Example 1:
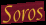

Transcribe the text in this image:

Soros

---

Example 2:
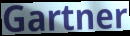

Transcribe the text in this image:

Gartner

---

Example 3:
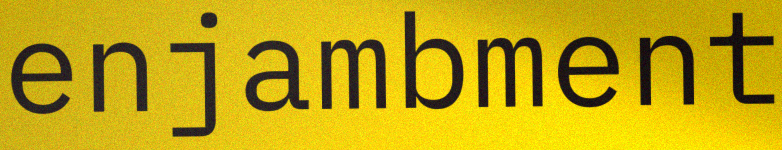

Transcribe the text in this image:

enjambment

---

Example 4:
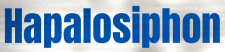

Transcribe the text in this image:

Hapalosiphon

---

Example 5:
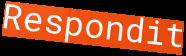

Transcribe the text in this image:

Respondit